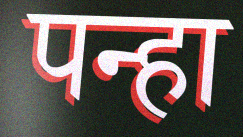
पन्हा